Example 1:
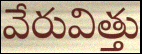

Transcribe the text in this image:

వేరువిత్తు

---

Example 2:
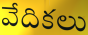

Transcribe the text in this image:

వేదికలు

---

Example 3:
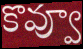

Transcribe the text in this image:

కొవ్వూ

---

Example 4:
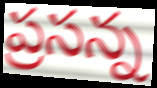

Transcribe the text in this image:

ప్రసన్న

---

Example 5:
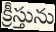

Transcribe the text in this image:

క్రీస్తును